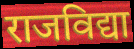
राजविद्या